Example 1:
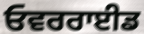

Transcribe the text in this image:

ਓਵਰਰਾਈਡ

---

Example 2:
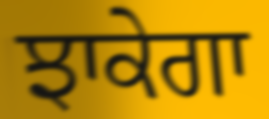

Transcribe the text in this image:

ਝਾਕੇਗਾ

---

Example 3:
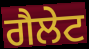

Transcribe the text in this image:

ਗੈਲੇਟ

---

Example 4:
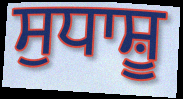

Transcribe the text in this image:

ਸੁਧਾਸ਼ੂ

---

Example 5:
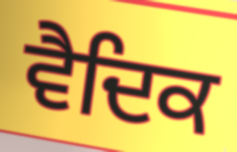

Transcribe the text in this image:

ਵੈਦਿਕ